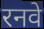
रनवे